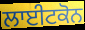
ਲਾਈਟਕੋਨ